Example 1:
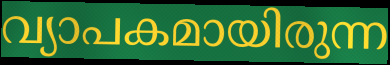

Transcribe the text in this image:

വ്യാപകമായിരുന്ന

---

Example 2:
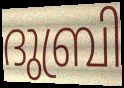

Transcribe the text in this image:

ദുബ്രി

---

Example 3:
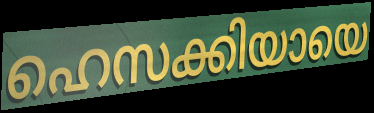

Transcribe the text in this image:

ഹെസക്കിയായെ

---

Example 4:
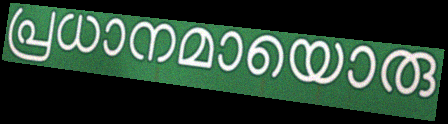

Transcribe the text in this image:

പ്രധാനമായൊരു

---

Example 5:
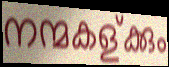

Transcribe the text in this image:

നന്മകള്ക്കും